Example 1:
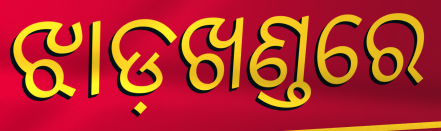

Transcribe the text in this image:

ଝାଡ଼ଖଣ୍ଡରେ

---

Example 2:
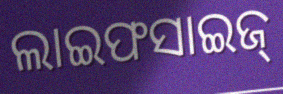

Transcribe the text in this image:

ଲାଇଫସାଇଜ୍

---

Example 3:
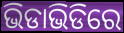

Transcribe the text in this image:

ଭିଡାଭିଡିରେ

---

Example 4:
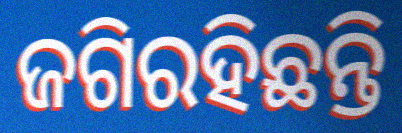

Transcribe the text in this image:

ଜଗିରହିଛନ୍ତି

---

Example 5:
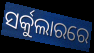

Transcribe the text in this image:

ସର୍କୁଲାରରେ